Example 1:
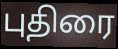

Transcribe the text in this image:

புதிரை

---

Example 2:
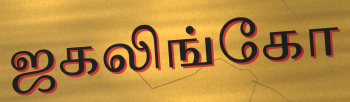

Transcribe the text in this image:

ஜகலிங்கோ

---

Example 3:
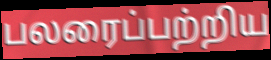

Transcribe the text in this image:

பலரைப்பற்றிய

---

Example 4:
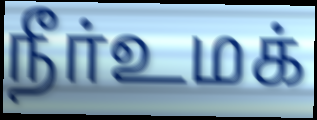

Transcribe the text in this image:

நீர்உமக்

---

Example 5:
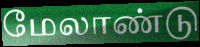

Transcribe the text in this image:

மேலாண்டு